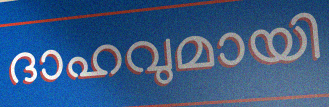
ദാഹവുമായി